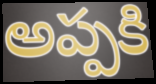
అప్పకి